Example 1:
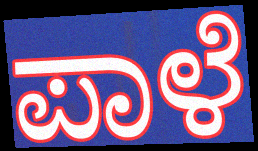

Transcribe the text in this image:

ಪಾಳೆ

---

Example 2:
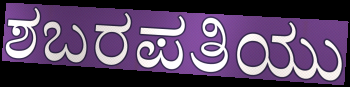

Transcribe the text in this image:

ಶಬರಪತಿಯು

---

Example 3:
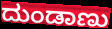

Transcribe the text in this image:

ದುಂಡಾಣು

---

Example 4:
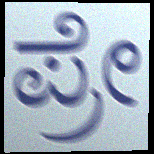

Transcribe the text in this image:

ಪ್ರೇ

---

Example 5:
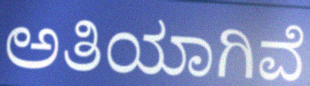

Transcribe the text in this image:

ಅತಿಯಾಗಿವೆ